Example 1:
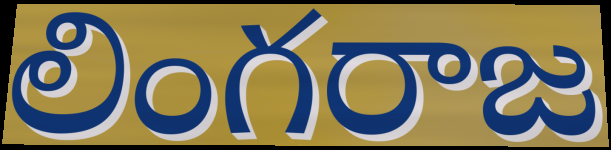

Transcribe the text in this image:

లింగరాజ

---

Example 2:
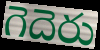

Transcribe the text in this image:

గెదెరు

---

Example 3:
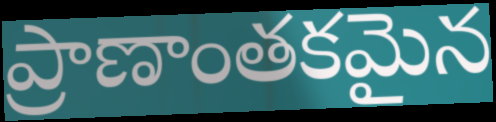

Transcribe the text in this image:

ప్రాణాంతకమైన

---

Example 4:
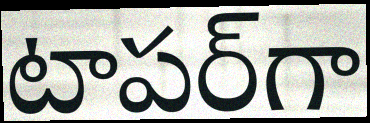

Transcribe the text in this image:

టాపర్‌గా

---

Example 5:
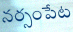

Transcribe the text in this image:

నర్సంపేట